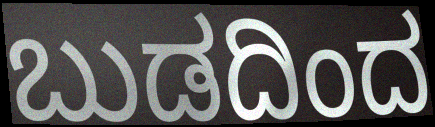
ಬುಡದಿಂದ